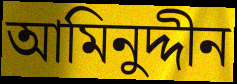
আমিনুদ্দীন